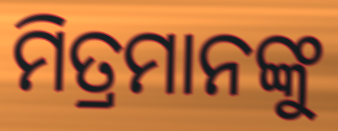
ମିତ୍ରମାନଙ୍କୁ